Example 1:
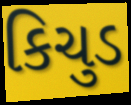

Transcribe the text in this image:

કિચુડ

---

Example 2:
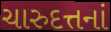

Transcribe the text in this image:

ચારુદત્તનાં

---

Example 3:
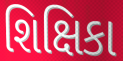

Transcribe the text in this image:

શિક્ષિકા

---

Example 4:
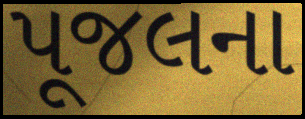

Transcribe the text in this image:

પૂજલના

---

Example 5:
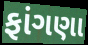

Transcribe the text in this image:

ફાંગણા